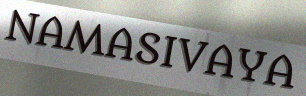
NAMASIVAYA